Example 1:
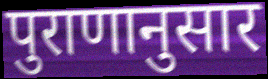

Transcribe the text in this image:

पुराणानुसार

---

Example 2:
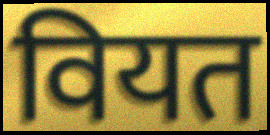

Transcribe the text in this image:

वियत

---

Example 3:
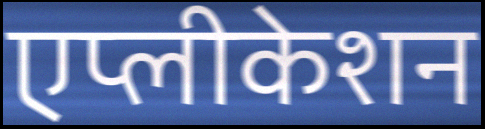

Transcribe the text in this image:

एप्‍लीकेशन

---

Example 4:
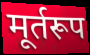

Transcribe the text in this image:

मूर्तरूप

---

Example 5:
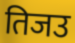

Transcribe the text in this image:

तिजउ